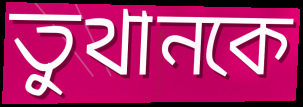
তুথানকে